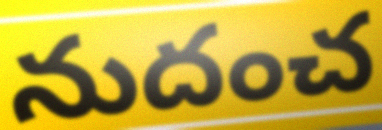
నుదంచ